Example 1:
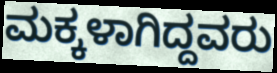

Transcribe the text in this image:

ಮಕ್ಕಳಾಗಿದ್ದವರು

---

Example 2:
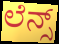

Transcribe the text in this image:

ಲೆನ್ಸ್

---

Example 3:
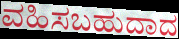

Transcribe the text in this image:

ವಹಿಸಬಹುದಾದ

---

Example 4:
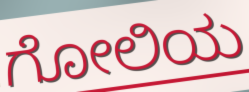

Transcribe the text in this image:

ಗೋಲಿಯ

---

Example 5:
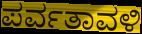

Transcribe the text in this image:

ಪರ್ವತಾವಳಿ